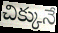
చిక్కునే